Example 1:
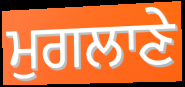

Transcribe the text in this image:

ਮੁਗਲਾਣੇ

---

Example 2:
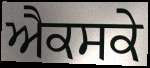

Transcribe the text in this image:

ਐਕਸਕੇ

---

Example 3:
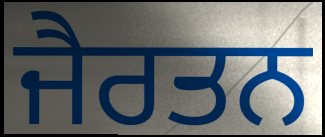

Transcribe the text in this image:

ਜੈਰਤਨ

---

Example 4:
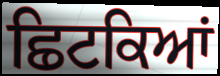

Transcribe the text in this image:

ਛਿਟਕਿਆਂ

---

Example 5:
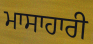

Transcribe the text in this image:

ਮਾਸਾਹਾਰੀ